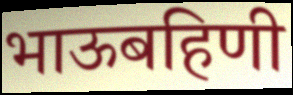
भाऊबहिणी